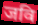
जवि